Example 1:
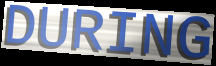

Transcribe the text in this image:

DURING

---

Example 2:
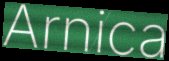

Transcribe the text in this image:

Arnica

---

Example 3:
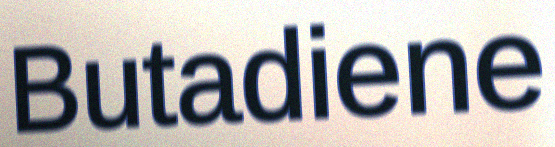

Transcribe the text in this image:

Butadiene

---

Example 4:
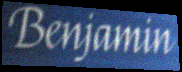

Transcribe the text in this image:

Benjamin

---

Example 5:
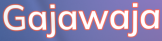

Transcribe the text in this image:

Gajawaja